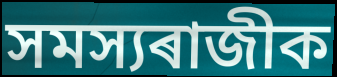
সমস্যৰাজীক